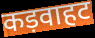
कड़वाहट